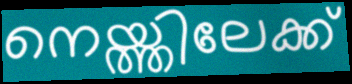
നെയ്ത്തിലേക്ക്